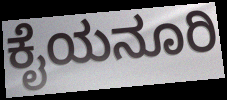
ಕೈಯನೂರಿ